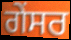
ਗੇਂਸਰ